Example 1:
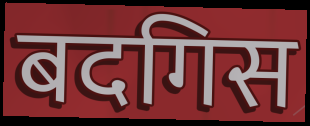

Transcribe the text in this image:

बदगिस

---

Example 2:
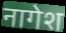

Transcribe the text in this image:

नागेश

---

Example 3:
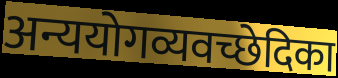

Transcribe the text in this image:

अन्ययोगव्यवच्छेदिका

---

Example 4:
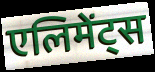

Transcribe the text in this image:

एलिमेंट्स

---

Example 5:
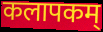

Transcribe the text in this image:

कलापकम्